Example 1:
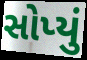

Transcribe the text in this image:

સોપ્યું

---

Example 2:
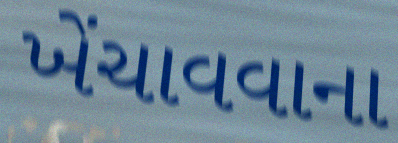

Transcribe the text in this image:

ખેંચાવવાના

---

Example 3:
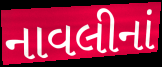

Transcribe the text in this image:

નાવલીનાં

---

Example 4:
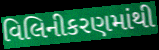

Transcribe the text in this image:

વિલિનીકરણમાંથી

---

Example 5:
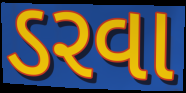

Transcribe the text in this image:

ડરવા